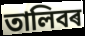
তালিবৰ